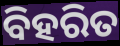
ବିହରିତ